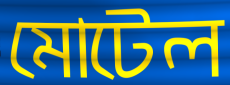
মোটেল